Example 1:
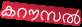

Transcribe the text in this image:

കറൗസൽ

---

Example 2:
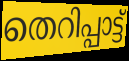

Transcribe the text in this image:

തെറിപ്പാട്ട്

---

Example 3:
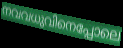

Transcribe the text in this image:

നവവധുവിനെപ്പോലെ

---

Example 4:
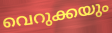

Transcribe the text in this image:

വെറുക്കയും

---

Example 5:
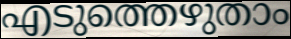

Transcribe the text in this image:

എടുത്തെഴുതാം